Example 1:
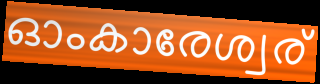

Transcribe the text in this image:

ഓംകാരേശ്വര്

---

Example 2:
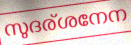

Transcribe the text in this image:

സുദര്ശനേന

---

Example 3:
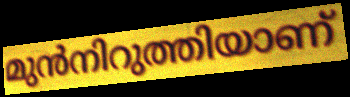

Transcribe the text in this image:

മുൻനിറുത്തിയാണ്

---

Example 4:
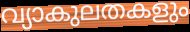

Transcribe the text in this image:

വ്യാകുലതകളും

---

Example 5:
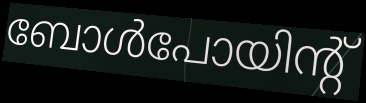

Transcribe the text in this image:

ബോൾപോയിന്റ്